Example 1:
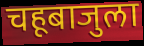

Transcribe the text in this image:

चहूबाजुला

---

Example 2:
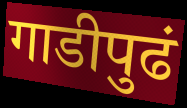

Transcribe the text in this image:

गाडीपुढं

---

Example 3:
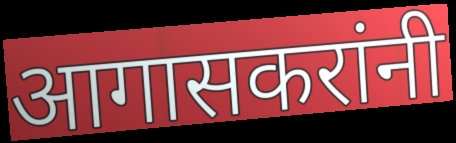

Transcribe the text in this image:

आगासकरांनी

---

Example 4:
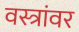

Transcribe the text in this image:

वस्त्रांवर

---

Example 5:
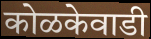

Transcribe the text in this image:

कोळकेवाडी